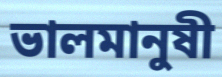
ভালমানুষী